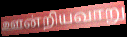
ஊன்றியவாறு